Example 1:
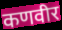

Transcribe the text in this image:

कणवीर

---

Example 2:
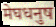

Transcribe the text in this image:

मेघधनुष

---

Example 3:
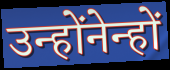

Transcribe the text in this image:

उन्होंनेन्हों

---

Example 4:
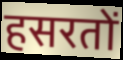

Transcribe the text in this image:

हसरतों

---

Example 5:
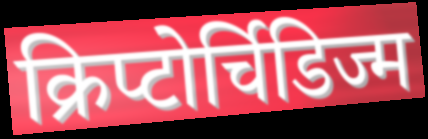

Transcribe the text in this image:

क्रिप्टोर्चिडिज्म